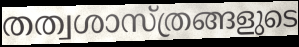
തത്വശാസ്ത്രങ്ങളുടെ